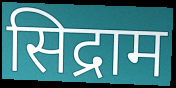
सिद्राम